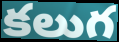
కలుగ